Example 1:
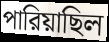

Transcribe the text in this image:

পারিয়াছিল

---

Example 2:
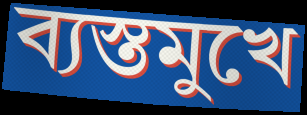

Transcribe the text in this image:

ব্যস্তমুখে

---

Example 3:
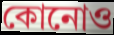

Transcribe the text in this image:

কোনোও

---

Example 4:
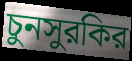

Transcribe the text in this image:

চুনসুরকির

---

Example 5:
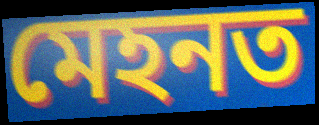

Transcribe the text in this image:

মেহনত